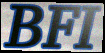
BFI